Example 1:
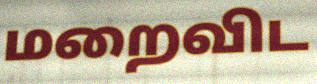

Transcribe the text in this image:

மறைவிட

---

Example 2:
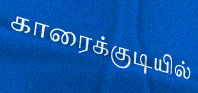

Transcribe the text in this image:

காரைக்குடியில்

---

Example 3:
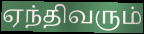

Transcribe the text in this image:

ஏந்திவரும்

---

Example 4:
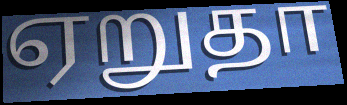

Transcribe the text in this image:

ஏறுதா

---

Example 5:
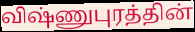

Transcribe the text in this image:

விஷ்ணுபுரத்தின்